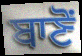
ਬਾਣੋਂ